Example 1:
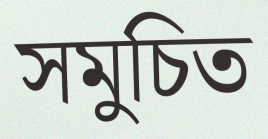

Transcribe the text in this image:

সমুচিত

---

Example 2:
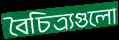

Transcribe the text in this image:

বৈচিত্র্যগুলো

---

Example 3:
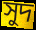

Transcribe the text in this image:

সুদ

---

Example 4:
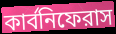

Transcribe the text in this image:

কার্বনিফেরাস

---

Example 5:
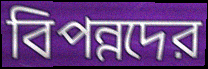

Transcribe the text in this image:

বিপন্নদের